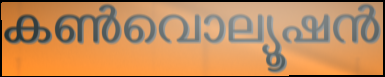
കൺവൊല്യൂഷൻ